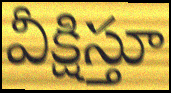
వీక్షిస్తూ